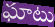
ఘాటు